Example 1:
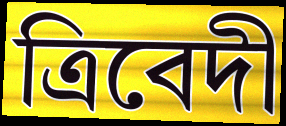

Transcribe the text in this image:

ত্রিবেদী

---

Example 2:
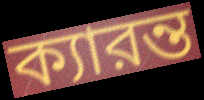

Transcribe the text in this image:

ক্যারন্ত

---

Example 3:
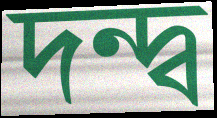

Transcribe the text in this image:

দন্দ্ব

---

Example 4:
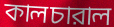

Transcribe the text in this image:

কালচারাল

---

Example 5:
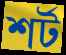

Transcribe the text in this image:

শর্ট